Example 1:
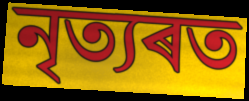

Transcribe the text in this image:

নৃত্যৰত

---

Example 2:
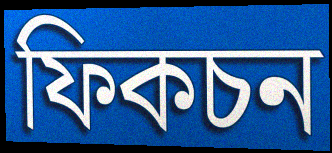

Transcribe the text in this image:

ফিকচন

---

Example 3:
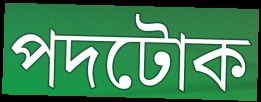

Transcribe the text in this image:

পদটোক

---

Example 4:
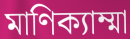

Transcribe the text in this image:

মাণিক্যাম্মা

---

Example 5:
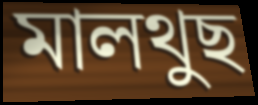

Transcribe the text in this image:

মালথুছ